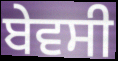
ਬੇਵਸੀ